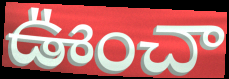
ఊంచా